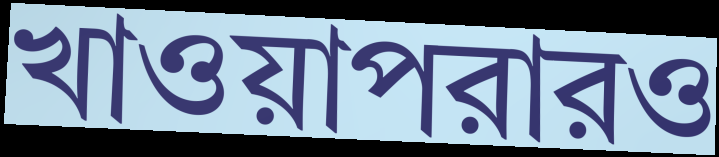
খাওয়াপরারও